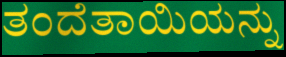
ತಂದೆತಾಯಿಯನ್ನು